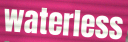
waterless